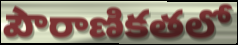
పౌరాణికతలో